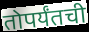
तोपर्यंतची